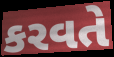
કરવતે